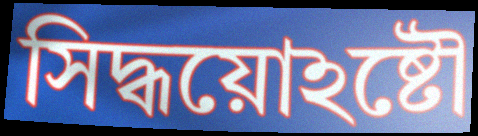
সিদ্ধয়োঽষ্টৌ